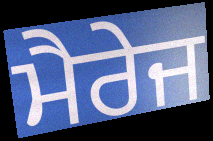
ਮੈਰੇਜ